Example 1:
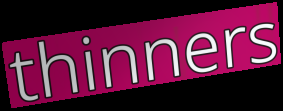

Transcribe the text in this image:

thinners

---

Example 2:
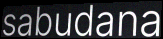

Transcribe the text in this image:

sabudana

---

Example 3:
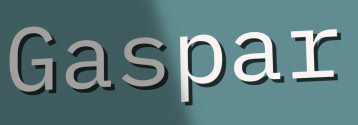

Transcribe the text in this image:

Gaspar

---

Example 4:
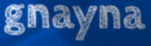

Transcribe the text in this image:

gnayna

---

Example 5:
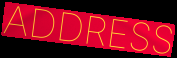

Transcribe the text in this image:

ADDRESS